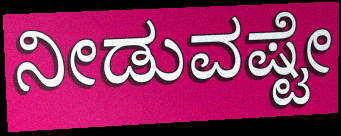
ನೀಡುವಷ್ಟೇ